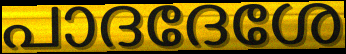
പാദദേശേ